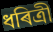
ধৰিত্ৰী